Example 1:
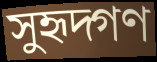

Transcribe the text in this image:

সুহৃদ্গণ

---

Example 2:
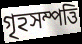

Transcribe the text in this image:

গৃহসম্পত্তি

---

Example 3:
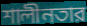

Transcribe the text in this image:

শালীনতার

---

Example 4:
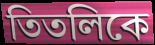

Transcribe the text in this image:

তিতলিকে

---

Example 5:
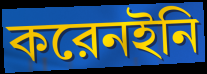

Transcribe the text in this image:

করেনইনি